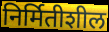
निर्मितीशील